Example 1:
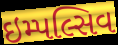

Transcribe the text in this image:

ઇમ્પલ્સિવ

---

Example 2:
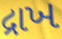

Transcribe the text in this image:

દ્રાખ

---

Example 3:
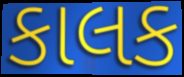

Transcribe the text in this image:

કાલક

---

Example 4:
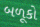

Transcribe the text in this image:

બળૂકો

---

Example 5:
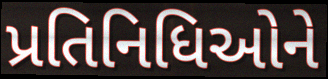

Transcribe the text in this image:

પ્રતિનિધિઓને